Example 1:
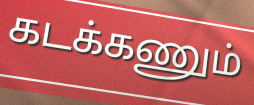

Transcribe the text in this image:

கடக்கணும்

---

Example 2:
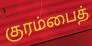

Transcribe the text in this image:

குரம்பைத்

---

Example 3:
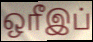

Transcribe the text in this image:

ஒரீஇப்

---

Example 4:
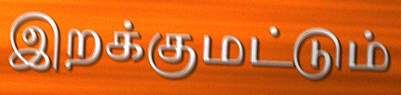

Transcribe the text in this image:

இறக்குமட்டும்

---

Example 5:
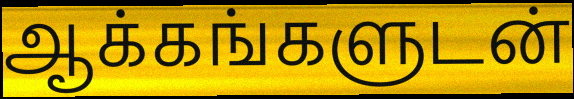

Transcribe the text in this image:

ஆக்கங்களுடன்